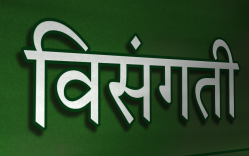
विसंगती